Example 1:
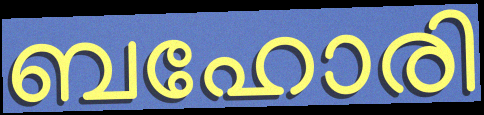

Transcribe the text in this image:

ബഹോരി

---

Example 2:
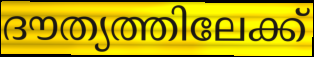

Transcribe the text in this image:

ദൗത്യത്തിലേക്ക്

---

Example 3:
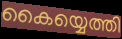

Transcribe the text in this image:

കൈയ്യെത്തി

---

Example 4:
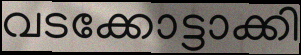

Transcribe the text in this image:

വടക്കോട്ടാക്കി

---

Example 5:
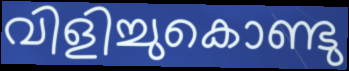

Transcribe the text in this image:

വിളിച്ചുകൊണ്ടു